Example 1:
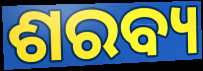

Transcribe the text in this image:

ଶରବ୍ୟ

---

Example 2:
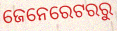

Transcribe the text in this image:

ଜେନେରେଟରରୁ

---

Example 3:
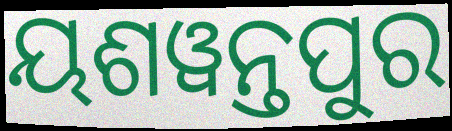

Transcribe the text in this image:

ୟଶୱନ୍ତପୁର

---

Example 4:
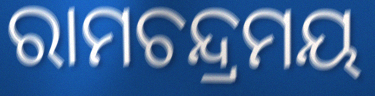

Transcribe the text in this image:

ରାମଚନ୍ଦ୍ରମୟ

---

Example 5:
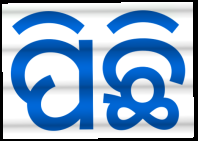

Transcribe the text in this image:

ପିଛି